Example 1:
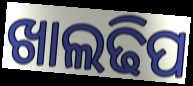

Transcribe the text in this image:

ଖାଲଢିପ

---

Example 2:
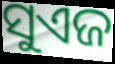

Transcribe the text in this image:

ସୁଏଜ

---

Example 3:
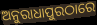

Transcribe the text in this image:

ଅନୁରାଧାପୁରଠାରେ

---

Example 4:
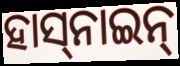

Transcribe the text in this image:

ହାସ୍‌ନାଇନ୍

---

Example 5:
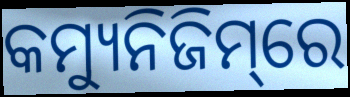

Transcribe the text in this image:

କମ୍ୟୁନିଜିମ୍‌ରେ